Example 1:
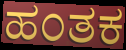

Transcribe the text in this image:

ಹಂತಕ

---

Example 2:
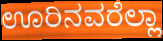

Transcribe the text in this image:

ಊರಿನವರೆಲ್ಲಾ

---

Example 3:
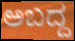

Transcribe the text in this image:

ಅಬದ್ದ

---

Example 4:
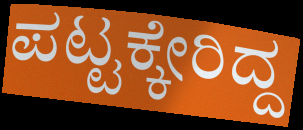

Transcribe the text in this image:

ಪಟ್ಟಕ್ಕೇರಿದ್ದ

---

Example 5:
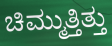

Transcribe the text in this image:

ಚಿಮ್ಮುತ್ತಿತ್ತು